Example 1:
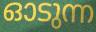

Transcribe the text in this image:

ഓടുന്ന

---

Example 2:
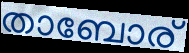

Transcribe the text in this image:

താബോര്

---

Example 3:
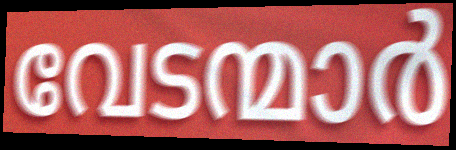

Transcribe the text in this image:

വേടന്മാർ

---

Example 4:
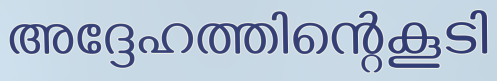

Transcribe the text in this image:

അദ്ദേഹത്തിന്റെകൂടി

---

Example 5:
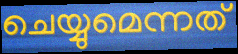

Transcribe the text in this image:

ചെയ്യുമെന്നത്